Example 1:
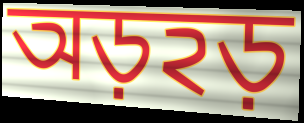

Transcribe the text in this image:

অড়হড়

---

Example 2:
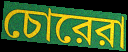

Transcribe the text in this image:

চোরেরা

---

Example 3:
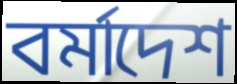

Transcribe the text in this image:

বর্মাদেশ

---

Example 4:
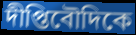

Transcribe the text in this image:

দীপ্তিবৌদিকে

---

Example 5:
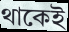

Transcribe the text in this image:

থাকেই